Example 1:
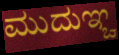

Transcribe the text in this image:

ಮುದುಞ್ಚ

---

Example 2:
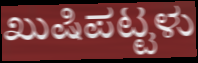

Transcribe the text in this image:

ಖುಷಿಪಟ್ಟಳು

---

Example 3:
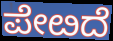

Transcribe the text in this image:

ಪೇೞದೆ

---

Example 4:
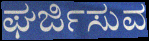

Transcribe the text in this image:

ಘರ್ಜಿಸುವ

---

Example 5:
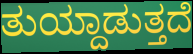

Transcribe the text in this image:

ತುಯ್ದಾಡುತ್ತದೆ